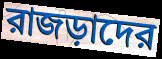
রাজড়াদের